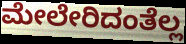
ಮೇಲೇರಿದಂತೆಲ್ಲ